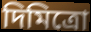
দিমিত্রো